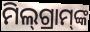
ମିଲ୍‌ଗ୍ରାମ୍‌ଙ୍କ